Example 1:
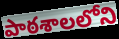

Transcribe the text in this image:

పాఠశాలలోని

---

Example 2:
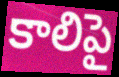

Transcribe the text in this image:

కాలిపై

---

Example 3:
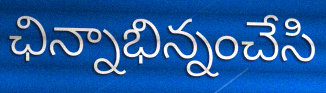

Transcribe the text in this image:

ఛిన్నాభిన్నంచేసి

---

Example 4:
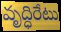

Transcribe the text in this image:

వృద్ధిరేటు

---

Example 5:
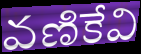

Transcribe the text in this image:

వణికేవి